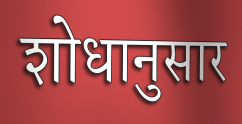
शोधानुसार